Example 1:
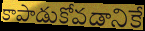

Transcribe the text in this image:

కాపాడుకోవడానికే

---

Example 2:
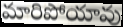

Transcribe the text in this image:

మారిపోయావు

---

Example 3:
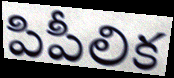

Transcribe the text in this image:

పిపీలిక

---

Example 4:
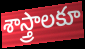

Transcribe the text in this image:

శాస్త్రాలకూ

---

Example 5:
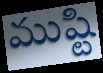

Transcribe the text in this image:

ముష్టి